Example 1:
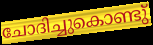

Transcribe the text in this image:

ചോദിച്ചുകൊണ്ടു്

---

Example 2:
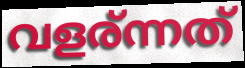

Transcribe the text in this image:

വളര്ന്നത്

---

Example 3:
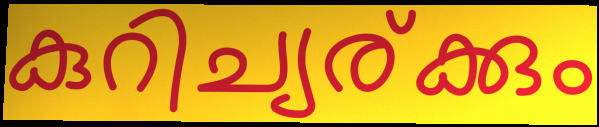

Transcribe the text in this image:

കുറിച്യര്ക്കും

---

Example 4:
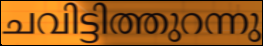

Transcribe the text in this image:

ചവിട്ടിത്തുറന്നു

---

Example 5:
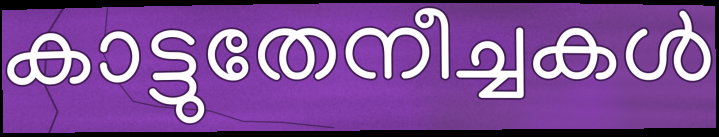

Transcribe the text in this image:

കാട്ടുതേനീച്ചകൾ